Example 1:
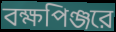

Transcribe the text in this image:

বক্ষপিঞ্জরে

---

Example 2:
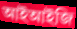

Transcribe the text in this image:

আইআইজি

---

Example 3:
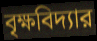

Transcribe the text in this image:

বৃক্ষবিদ্যার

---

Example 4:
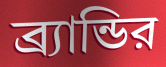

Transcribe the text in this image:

ব্র্যান্ডির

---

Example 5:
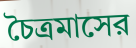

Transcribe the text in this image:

চৈত্রমাসের